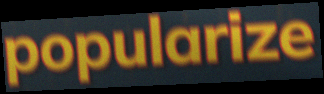
popularize